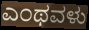
ಎಂಥವಳು